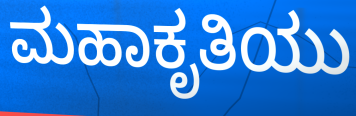
ಮಹಾಕೃತಿಯು